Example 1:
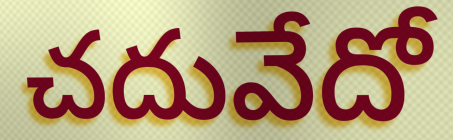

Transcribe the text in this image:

చదువేదో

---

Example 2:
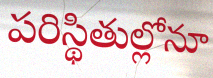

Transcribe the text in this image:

పరిస్థితుల్లోనూ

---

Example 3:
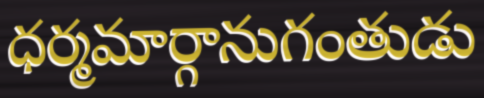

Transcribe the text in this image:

ధర్మమార్గానుగంతుడు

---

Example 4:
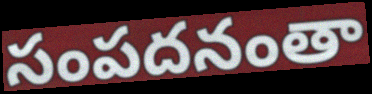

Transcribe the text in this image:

సంపదనంతా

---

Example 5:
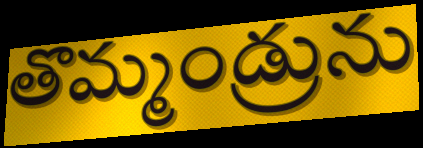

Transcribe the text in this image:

తొమ్మండ్రును